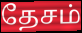
தேசம்